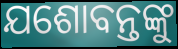
ଯଶୋବନ୍ତଙ୍କୁ